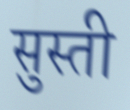
सुस्ती